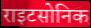
राइटसोनिक